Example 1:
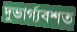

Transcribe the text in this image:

দুভার্গ্যবশত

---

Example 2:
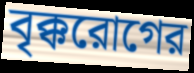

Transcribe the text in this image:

বৃক্করোগের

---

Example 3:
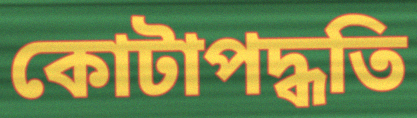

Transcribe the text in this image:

কোটাপদ্ধতি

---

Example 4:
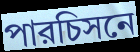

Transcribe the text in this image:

পারচিসনে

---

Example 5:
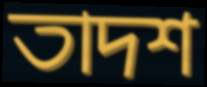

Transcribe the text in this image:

তাদশ